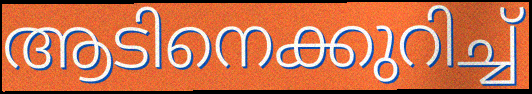
ആടിനെക്കുറിച്ച്